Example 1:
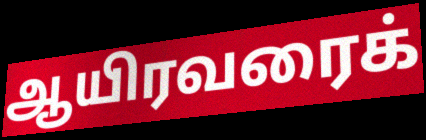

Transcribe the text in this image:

ஆயிரவரைக்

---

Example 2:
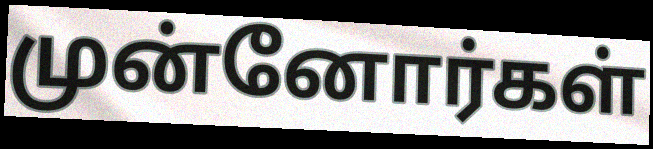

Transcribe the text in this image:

முன்னோர்கள்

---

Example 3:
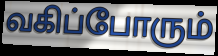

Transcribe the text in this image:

வகிப்போரும்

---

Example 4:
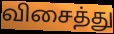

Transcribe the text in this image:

விசைத்து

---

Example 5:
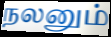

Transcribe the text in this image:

நலனும்